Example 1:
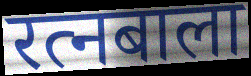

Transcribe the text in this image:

रत्नबाला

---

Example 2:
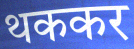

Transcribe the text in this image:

थककर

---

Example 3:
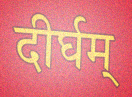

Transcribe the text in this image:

दीर्घम्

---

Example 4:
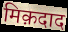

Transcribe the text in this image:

मिक़दाद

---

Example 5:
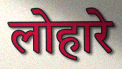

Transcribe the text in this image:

लोहारे